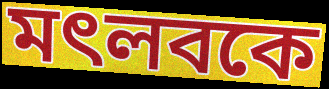
মৎলবকে